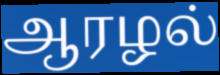
ஆரழல்